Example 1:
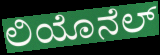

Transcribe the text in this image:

ಲಿಯೊನೆಲ್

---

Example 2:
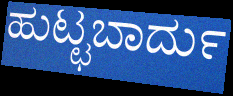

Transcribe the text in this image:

ಹುಟ್ಟಬಾರ್ದು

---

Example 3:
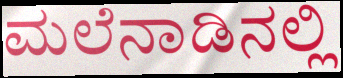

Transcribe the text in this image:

ಮಲೆನಾಡಿನಲ್ಲಿ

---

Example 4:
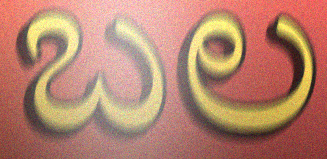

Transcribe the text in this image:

ಬಲ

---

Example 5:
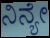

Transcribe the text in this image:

ನಿನ್ಯೇ